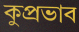
কুপ্রভাব